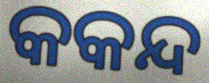
କକନ୍ଦ